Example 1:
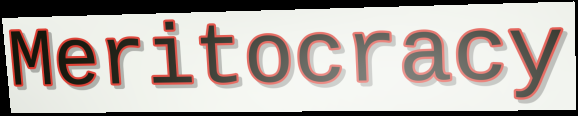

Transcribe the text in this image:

Meritocracy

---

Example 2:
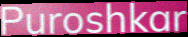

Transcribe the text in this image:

Puroshkar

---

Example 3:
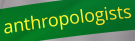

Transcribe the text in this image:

anthropologists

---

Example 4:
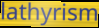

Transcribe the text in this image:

lathyrism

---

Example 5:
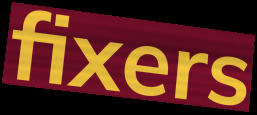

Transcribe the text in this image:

fixers